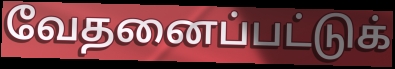
வேதனைப்பட்டுக்